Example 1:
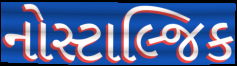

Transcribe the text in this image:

નોસ્ટાલ્જિક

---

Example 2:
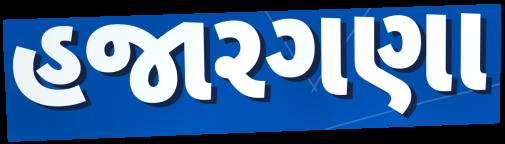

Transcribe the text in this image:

હજારગણા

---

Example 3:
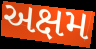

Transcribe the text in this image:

અક્ષમ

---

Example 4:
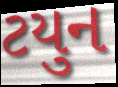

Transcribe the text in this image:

ટયુન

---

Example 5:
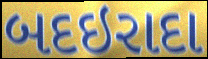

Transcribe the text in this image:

બદઇરાદા